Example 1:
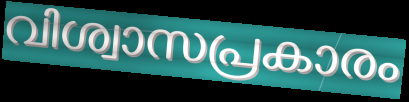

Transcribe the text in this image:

വിശ്വാസപ്രകാരം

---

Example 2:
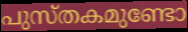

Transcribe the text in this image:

പുസ്തകമുണ്ടോ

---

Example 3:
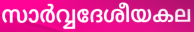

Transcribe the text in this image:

സാർവ്വദേശീയകല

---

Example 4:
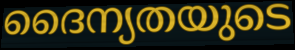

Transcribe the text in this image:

ദൈന്യതയുടെ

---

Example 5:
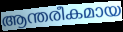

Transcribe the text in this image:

ആന്തരീകമായ